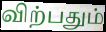
விற்பதும்